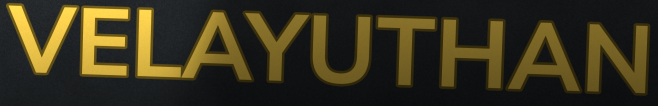
VELAYUTHAN